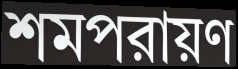
শমপরায়ণ